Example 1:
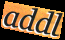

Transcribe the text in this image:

addl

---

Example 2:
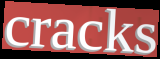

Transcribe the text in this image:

cracks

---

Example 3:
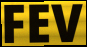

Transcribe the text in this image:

FEV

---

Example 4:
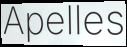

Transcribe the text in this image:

Apelles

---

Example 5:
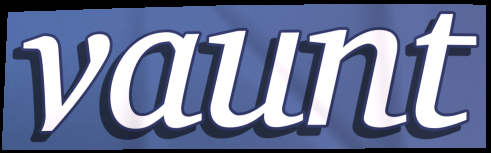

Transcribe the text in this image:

vaunt